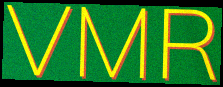
VMR